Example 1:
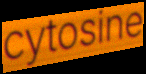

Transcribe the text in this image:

cytosine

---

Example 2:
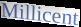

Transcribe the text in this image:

Millicent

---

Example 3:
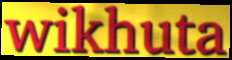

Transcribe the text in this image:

wikhuta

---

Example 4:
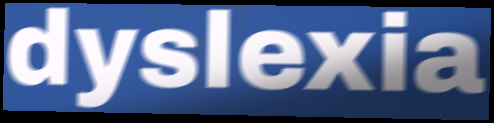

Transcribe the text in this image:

dyslexia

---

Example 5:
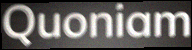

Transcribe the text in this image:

Quoniam